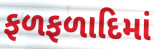
ફળફળાદિમાં